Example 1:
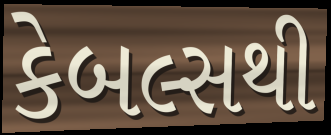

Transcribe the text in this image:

કેબલ્સથી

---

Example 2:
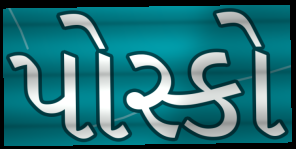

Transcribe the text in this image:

પોસ્કો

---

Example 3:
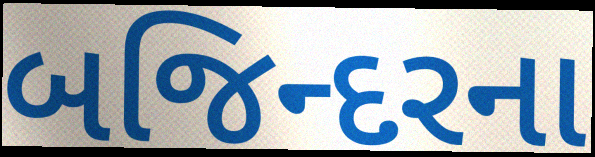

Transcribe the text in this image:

બજિન્દરના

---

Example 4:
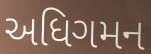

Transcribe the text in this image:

અધિગમન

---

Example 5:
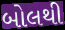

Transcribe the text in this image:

બોલથી